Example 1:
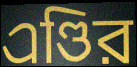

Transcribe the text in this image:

এণ্ডির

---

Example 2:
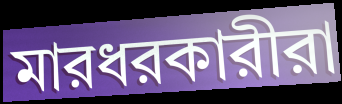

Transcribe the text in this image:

মারধরকারীরা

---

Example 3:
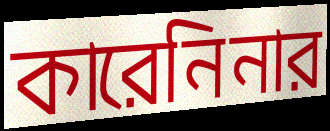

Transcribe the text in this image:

কারেনিনার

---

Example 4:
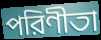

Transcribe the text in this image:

পরিণীতা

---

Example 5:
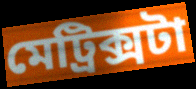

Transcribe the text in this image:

মেট্রিক্সটা